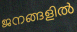
ജനങ്ങളിൽ